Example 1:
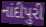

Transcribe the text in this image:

નાંદીપુરી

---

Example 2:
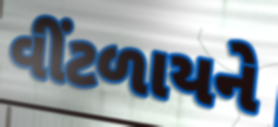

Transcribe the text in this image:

વીંટળાયને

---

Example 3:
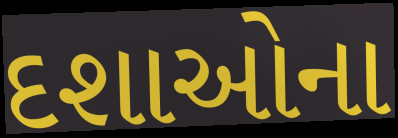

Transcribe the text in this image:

દશાઓના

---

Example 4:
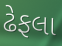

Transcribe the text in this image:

ઢેફલા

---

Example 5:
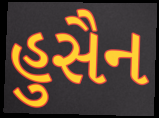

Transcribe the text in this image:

હુસૈન